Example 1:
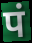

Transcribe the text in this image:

पं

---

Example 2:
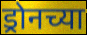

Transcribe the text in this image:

ड्रोनच्या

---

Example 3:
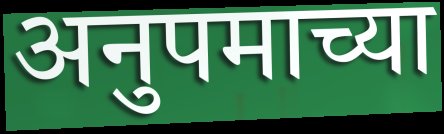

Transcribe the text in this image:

अनुपमाच्या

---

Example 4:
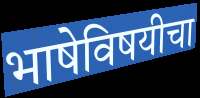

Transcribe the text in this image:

भाषेविषयीचा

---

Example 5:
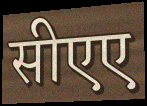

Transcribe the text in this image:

सीएए